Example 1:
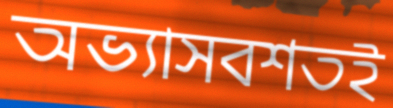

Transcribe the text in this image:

অভ্যাসবশতই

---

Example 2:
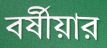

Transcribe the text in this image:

বর্ষীয়ার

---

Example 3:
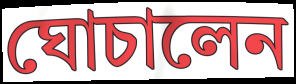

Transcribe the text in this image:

ঘোচালেন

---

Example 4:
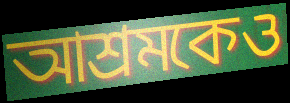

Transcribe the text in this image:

আশ্রমকেও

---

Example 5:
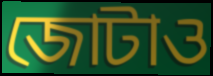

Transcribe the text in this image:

জোটাও